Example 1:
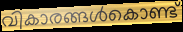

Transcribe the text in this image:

വികാരങ്ങൾകൊണ്ട്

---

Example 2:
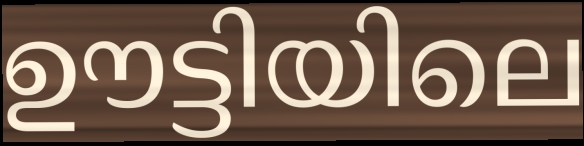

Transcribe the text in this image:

ഊട്ടിയിലെ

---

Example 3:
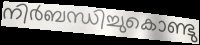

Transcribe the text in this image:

നിർബന്ധിച്ചുകൊണ്ടു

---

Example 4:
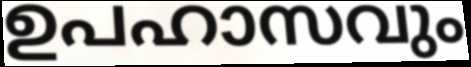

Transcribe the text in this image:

ഉപഹാസവും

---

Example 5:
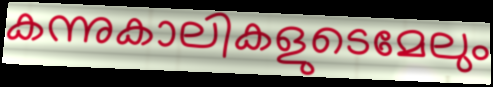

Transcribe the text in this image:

കന്നുകാലികളുടെമേലും